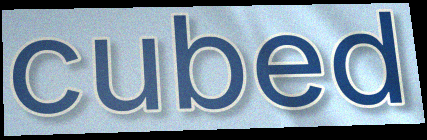
cubed